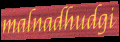
malnadhudgi